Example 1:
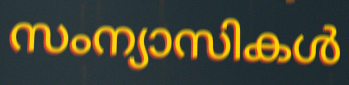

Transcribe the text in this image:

സംന്യാസികൾ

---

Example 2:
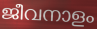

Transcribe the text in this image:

ജീവനാളം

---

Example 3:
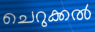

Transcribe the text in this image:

ചെറുക്കൽ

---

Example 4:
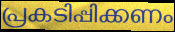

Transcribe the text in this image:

പ്രകടിപ്പിക്കണം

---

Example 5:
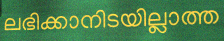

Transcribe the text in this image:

ലഭിക്കാനിടയില്ലാത്ത